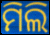
ମିଲି